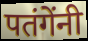
पतंगेंनी